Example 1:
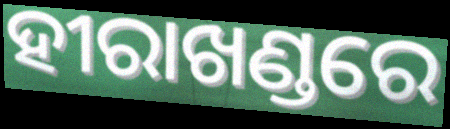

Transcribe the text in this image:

ହୀରାଖଣ୍ଡରେ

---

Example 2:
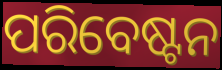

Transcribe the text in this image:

ପରିବେଷ୍ଟନ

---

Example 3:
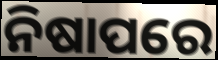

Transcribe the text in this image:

ନିଷାପରେ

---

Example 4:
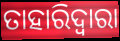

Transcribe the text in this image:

ତାହାରିଦ୍ଵାରା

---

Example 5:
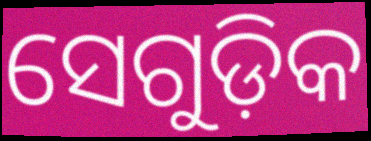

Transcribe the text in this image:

ସେଗୁଡ଼ିକ